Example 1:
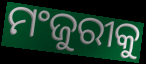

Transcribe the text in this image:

ମଂଜୁରୀକୁ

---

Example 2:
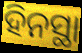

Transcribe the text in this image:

ହିନସ୍ଥା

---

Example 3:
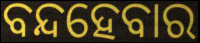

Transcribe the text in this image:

ବନ୍ଦହେବାର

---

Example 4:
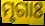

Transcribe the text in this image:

ମୃଗାଃ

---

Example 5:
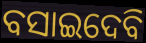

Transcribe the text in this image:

ବସାଇଦେବି